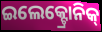
ଇଲେକ୍ଟ୍ରୋନିକ୍